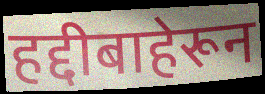
हद्दीबाहेरून